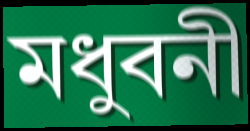
মধুবনী